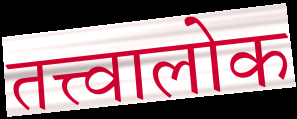
तत्त्वालोक